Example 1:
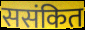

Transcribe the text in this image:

ससंकित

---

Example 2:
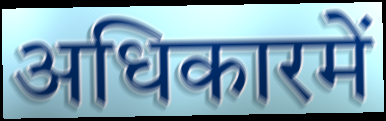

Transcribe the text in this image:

अधिकारमें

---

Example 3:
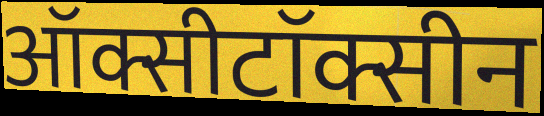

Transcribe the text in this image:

ऑक्सीटॉक्सीन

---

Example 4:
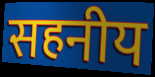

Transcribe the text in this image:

सहनीय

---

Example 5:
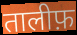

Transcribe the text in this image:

तालीफ़